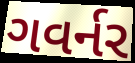
ગવર્નર